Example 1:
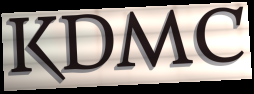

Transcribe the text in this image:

KDMC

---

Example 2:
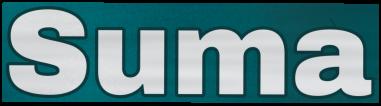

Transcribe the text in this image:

Suma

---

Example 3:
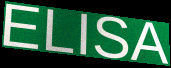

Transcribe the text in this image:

ELISA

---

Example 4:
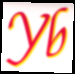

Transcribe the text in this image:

Yb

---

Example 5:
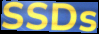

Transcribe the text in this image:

SSDs